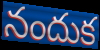
నందుక